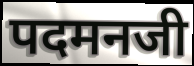
पदमनजी